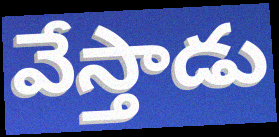
వేస్తాడు